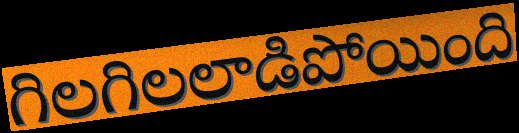
గిలగిలలాడిపోయింది